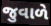
જુવાળે